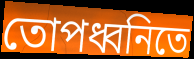
তোপধ্বনিতে